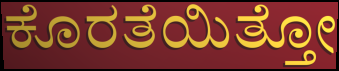
ಕೊರತೆಯಿತ್ತೋ